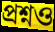
প্ৰশ্নও